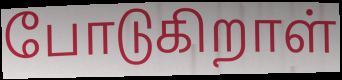
போடுகிறாள்